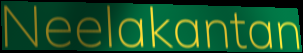
Neelakantan